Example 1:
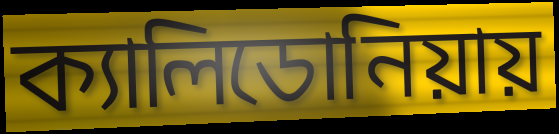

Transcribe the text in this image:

ক্যালিডোনিয়ায়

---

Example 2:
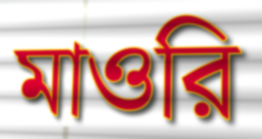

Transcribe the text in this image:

মাওরি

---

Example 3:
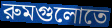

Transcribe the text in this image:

রুমগুলোতে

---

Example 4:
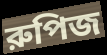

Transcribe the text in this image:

রুপিজ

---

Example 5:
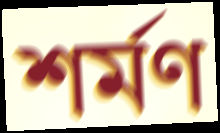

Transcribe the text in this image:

শর্মণ